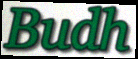
Budh